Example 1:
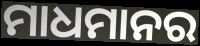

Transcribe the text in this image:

ମାଧମାନର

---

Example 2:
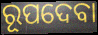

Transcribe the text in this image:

ରୂପଦେବା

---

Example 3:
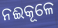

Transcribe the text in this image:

ନଈକୂଳେ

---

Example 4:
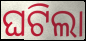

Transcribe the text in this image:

ଘଟିଲା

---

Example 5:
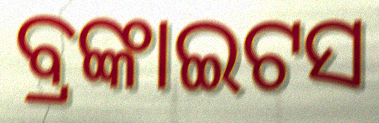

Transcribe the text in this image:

ବ୍ରଙ୍କାଇଟସ